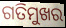
ଗତିମୁଖର